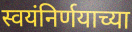
स्वयंनिर्णयाच्या